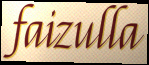
faizulla